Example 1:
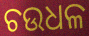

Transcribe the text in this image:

ଚଉଧଳ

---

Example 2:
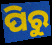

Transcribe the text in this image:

ପିରୁ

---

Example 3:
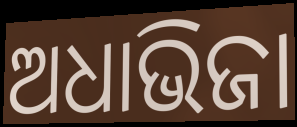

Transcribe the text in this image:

ଅଧାଭିଜା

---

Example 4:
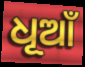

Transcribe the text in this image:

ଧୂଆଁ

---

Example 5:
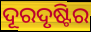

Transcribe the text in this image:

ଦୂରଦୃଷ୍ଟିର